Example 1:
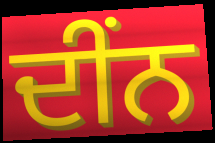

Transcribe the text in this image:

ਦੀਂਨ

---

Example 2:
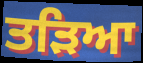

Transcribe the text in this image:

ਤੜਿਆ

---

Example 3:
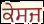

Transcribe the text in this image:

ਕੇਸਜ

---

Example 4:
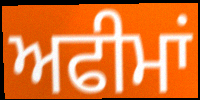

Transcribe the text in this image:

ਅਫੀਮਾਂ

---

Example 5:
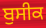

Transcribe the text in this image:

ਬੁਸੀਕ